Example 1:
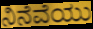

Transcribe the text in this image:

ನಿನೆವೆಯು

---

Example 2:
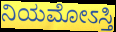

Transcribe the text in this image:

ನಿಯಮೋಽಸ್ತಿ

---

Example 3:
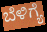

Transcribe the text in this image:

ಬೆಳಿಗ್ಯೆ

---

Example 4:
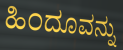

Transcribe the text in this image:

ಹಿಂದೂವನ್ನು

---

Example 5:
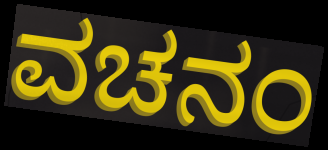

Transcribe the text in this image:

ವಚನಂ